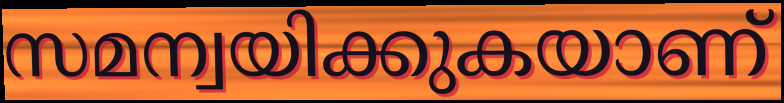
സമന്വയിക്കുകയാണ്